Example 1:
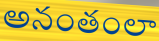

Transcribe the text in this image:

అనంతంలా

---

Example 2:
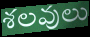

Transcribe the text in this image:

శలవులు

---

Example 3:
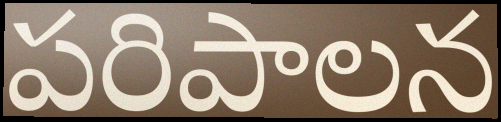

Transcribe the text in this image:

పరిపాలన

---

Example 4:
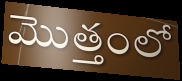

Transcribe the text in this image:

మొత్తంలో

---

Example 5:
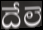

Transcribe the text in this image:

దేలె